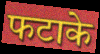
फटाके